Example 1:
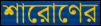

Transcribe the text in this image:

শারোণের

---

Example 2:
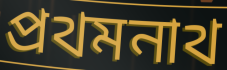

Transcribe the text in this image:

প্রথমনাথ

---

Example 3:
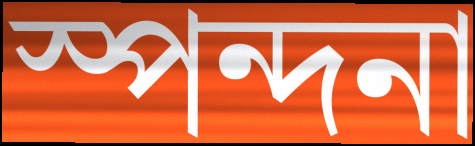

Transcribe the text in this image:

স্পন্দনা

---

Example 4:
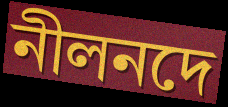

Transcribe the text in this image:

নীলনদে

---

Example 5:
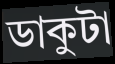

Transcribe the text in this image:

ডাকুটা